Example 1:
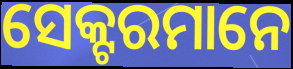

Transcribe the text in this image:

ସେକ୍ଟରମାନେ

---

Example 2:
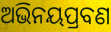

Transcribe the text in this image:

ଅଭିନୟପ୍ରବଣ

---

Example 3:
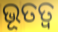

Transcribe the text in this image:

ଭୂତତ୍ୱ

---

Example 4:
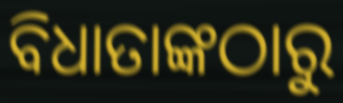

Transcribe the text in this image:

ବିଧାତାଙ୍କଠାରୁ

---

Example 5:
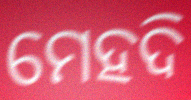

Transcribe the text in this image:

ମେହଦି